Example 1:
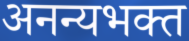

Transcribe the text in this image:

अनन्यभक्त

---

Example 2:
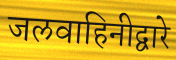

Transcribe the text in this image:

जलवाहिनीद्वारे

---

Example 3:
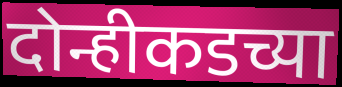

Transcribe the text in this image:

दोन्हीकडच्या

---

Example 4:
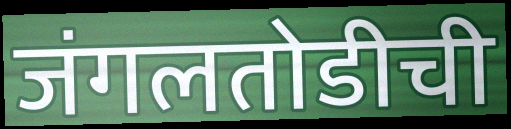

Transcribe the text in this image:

जंगलतोडीची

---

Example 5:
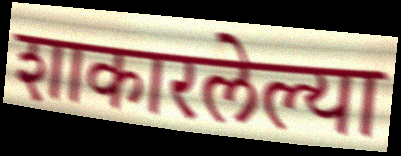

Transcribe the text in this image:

शाकारलेल्या